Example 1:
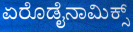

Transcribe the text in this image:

ಏರೊಡೈನಾಮಿಕ್ಸ್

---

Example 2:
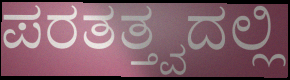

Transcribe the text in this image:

ಪರತತ್ತ್ವದಲ್ಲಿ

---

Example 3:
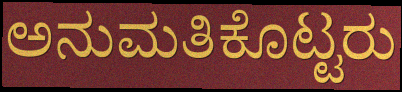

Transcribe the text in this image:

ಅನುಮತಿಕೊಟ್ಟರು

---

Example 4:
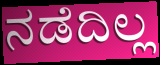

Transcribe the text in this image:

ನಡೆದಿಲ್ಲ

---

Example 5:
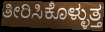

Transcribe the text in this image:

ತೀರಿಸಿಕೊಳ್ಳುತ್ತ